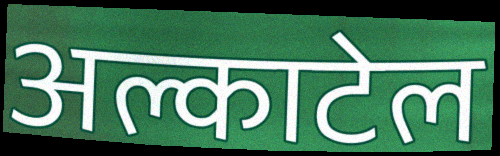
अल्काटेल